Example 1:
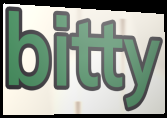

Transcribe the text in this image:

bitty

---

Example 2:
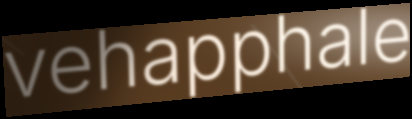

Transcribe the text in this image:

vehapphale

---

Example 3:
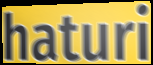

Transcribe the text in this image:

haturi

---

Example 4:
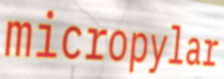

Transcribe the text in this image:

micropylar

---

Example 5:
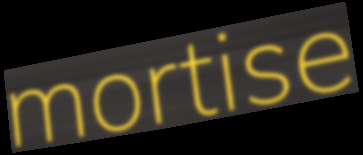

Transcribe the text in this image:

mortise